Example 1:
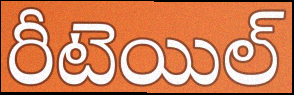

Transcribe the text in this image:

రీటెయిల్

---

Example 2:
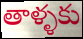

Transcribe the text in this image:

తాళ్ళకు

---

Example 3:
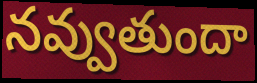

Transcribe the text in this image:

నవ్వుతుందా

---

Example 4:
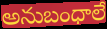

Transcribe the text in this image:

అనుబంధాలే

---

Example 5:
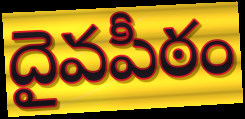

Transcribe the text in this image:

దైవపీఠం